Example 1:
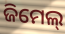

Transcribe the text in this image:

ଜିମେଲ୍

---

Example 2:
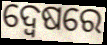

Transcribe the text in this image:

ଦ୍ୱେଷରେ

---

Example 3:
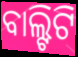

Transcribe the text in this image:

ବାଲ୍ଟିଟି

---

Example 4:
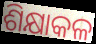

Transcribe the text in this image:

ଶିକ୍ଷାକଳ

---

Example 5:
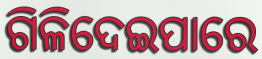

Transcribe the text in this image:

ଗିଳିଦେଇପାରେ